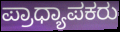
ಪ್ರಾಧ್ಯಾಪಕರು